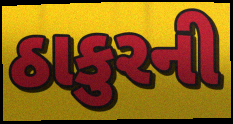
ઠાકુરની